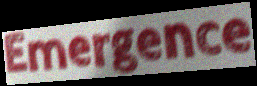
Emergence